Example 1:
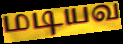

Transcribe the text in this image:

மடியவ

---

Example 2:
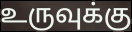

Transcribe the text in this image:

உருவுக்கு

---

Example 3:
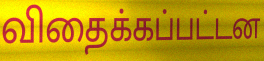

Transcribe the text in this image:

விதைக்கப்பட்டன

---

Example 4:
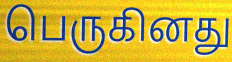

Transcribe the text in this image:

பெருகினது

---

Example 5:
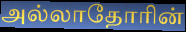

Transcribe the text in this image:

அல்லாதோரின்